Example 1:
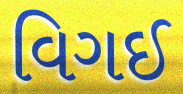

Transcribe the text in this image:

વિગઈ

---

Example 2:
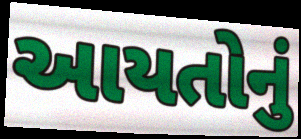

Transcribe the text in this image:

આયતોનું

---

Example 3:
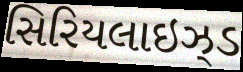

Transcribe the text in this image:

સિરિયલાઇઝ્ડ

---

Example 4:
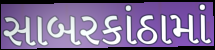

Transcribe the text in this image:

સાબરકાંઠામાં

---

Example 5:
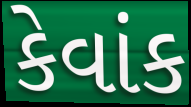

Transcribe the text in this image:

કેવાંક